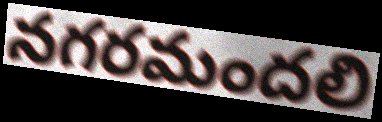
నగరమందలి